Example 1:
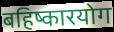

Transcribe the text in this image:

बहिष्कारयोग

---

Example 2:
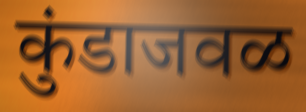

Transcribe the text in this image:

कुंडाजवळ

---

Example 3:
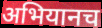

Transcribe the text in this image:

अभियानच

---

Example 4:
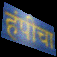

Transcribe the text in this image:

हंपीचा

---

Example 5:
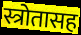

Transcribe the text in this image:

स्त्रोतासह